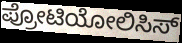
ಪ್ರೋಟಿಯೋಲಿಸಿಸ್